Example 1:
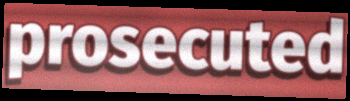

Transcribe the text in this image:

prosecuted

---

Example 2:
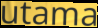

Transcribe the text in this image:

utama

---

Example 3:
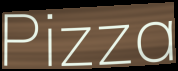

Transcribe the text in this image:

Pizza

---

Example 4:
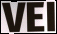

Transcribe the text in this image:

VEI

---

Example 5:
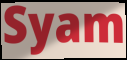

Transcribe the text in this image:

Syam